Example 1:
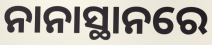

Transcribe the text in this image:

ନାନାସ୍ଥାନରେ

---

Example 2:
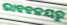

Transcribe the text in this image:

ଭାବବଳୟରୁ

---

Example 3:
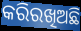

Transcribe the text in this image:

କରିରଖିଅଛି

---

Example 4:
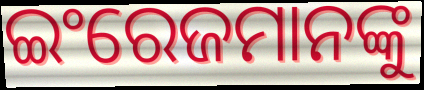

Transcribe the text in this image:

ଇଂରେଜମାନଙ୍କୁ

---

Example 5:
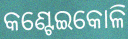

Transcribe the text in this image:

କଣ୍ଟେଇକୋଳି